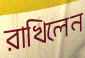
রাখিলেন